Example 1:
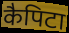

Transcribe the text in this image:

कैपिटा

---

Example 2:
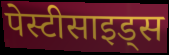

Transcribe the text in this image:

पेस्टीसाइड्स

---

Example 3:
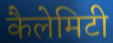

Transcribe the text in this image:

कैलेमिटी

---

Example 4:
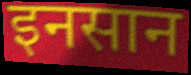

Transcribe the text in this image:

इनसान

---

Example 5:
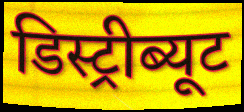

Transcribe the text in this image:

डिस्ट्रीब्यूट